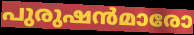
പുരുഷൻമാരോ